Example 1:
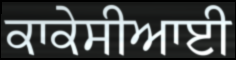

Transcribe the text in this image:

ਕਾਕੇਸੀਆਈ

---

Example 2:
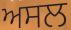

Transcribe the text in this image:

ਅਸਲ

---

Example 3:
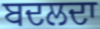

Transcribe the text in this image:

ਬਦਲਦਾ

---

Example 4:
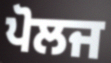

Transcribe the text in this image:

ਪੋਲਜ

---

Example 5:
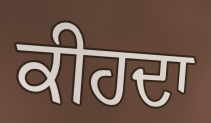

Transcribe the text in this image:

ਕੀਹਦਾ